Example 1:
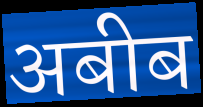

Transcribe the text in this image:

अबीब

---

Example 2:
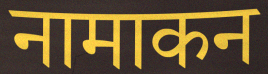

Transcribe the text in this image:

नामाकन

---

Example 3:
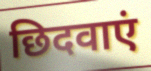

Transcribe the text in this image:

छिदवाएं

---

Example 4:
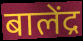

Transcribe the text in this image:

बालेंद्र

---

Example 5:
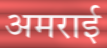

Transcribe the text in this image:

अमराई